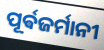
ପୂର୍ଵଜର୍ମାନୀ